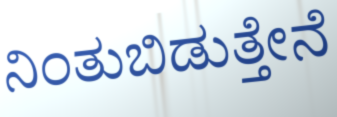
ನಿಂತುಬಿಡುತ್ತೇನೆ